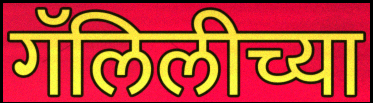
गॅलिलीच्या